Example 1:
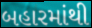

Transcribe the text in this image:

બહારમાંથી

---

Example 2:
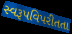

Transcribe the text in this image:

સ્વરૂપવિપરીતતા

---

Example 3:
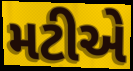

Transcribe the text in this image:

મટીએ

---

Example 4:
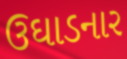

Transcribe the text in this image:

ઉઘાડનાર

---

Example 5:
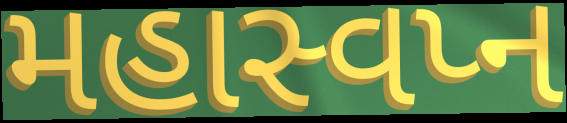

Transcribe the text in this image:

મહાસ્વપ્ન